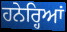
ਹਨੇਰ੍ਹਿਆਂ